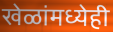
खेळांमध्येही